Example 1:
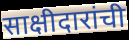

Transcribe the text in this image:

साक्षीदारांची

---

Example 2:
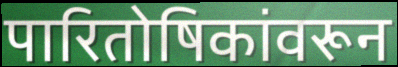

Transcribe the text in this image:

पारितोषिकांवरून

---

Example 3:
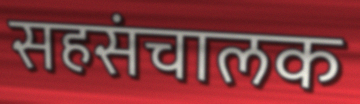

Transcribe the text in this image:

सहसंचालक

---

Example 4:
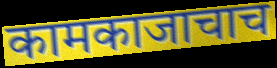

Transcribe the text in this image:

कामकाजाचाच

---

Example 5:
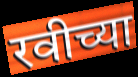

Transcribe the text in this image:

रवीच्या